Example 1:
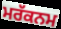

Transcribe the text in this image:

ਮਰੱਕਨਮ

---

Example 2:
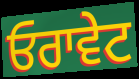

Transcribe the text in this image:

ਓਰਾਵੇਟ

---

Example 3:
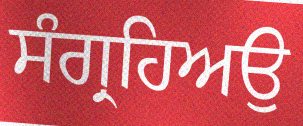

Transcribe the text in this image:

ਸੰਗ੍ਰਹਿਅਉ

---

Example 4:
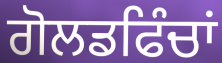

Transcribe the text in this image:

ਗੋਲਡਫਿੰਚਾਂ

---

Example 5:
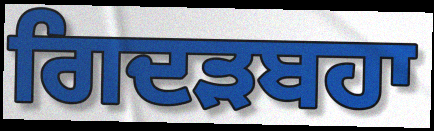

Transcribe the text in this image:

ਗਿਦੜਬਹਾ